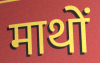
माथों